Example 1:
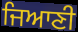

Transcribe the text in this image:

ਜਿਆਣੀ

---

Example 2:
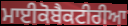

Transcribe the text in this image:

ਮਾਈਕੋਬੈਕਟੀਰੀਆ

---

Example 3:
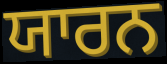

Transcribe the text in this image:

ਯਾਰਨ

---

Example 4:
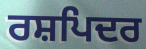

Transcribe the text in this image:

ਰਸ਼ਪਿਦਰ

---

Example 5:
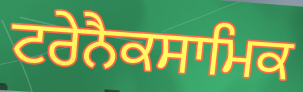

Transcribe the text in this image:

ਟਰੇਨੈਕਸਾਮਿਕ